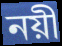
নয়ী